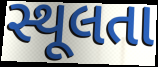
સ્થૂલતા